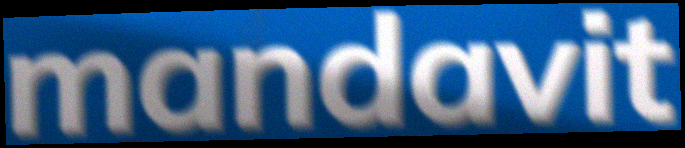
mandavit